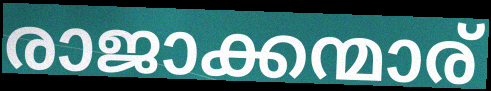
രാജാക്കന്മാര്